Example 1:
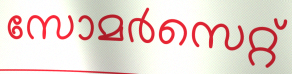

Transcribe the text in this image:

സോമർസെറ്റ്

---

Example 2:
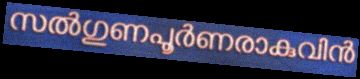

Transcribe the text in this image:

സൽഗുണപൂർണരാകുവിൻ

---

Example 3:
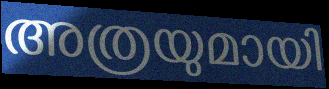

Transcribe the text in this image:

അത്രയുമായി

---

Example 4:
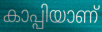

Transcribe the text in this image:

കാപ്പിയാണ്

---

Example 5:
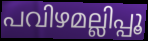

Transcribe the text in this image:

പവിഴമല്ലിപ്പൂ